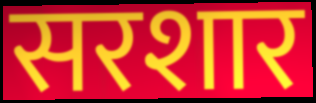
सरशार